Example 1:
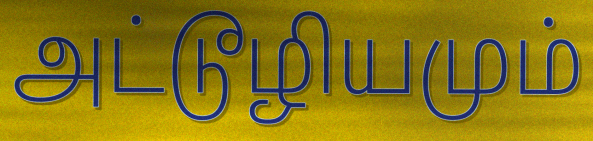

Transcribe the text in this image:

அட்டூழியமும்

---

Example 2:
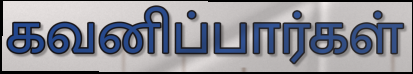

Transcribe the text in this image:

கவனிப்பார்கள்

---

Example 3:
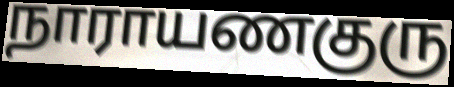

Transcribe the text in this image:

நாராயணகுரு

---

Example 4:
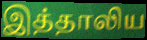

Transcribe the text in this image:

இத்தாலிய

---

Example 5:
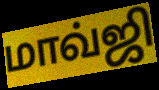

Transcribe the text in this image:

மாவ்ஜி